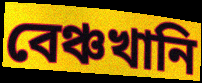
বেঞ্চখানি